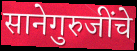
सानेगुरुजींचे